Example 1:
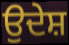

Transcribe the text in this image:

ਉਦੇਸ਼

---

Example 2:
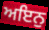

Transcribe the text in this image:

ਅਇਨੁ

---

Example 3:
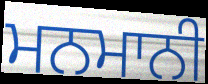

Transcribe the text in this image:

ਮਨਮਾਨੀ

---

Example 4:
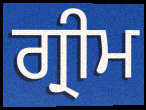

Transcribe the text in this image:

ਗ੍ਰੀਮ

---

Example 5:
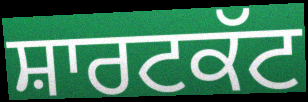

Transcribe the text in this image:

ਸ਼ਾਰਟਕੱਟ